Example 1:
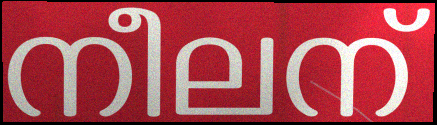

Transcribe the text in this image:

നീലന്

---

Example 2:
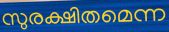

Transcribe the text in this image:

സുരക്ഷിതമെന്ന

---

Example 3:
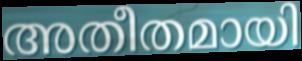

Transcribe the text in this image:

അതീതമായി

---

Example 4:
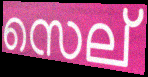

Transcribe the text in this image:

സെല്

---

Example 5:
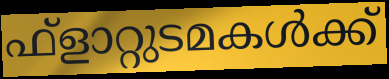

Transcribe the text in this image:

ഫ്ളാറ്റുടമകൾക്ക്